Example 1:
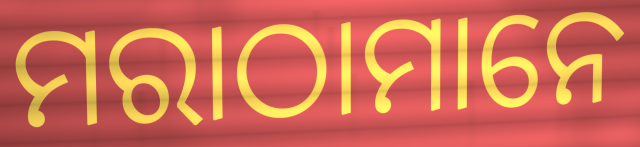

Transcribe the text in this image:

ମରାଠାମାନେ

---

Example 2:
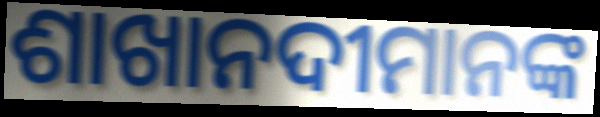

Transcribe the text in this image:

ଶାଖାନଦୀମାନଙ୍କ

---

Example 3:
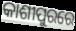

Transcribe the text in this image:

କାଶୀପୁରରେ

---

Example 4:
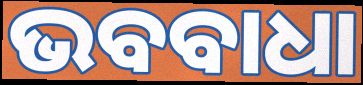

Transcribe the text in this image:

ଭବବାଧା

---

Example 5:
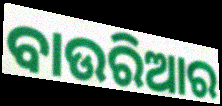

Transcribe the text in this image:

ବାଉରିଆର